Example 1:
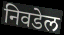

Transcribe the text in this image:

निवडेल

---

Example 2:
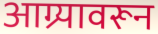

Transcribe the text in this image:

आग्र्यावरून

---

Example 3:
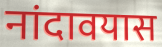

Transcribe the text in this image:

नांदावयास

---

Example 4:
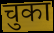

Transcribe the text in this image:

चुका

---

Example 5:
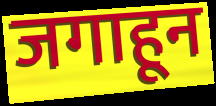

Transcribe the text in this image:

जगाहून